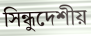
সিন্ধুদেশীয়